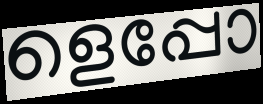
ളെപ്പോ